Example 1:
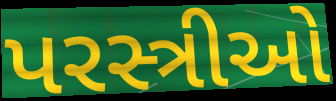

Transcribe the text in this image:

પરસ્ત્રીઓ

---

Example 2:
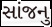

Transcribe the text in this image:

સાંજનુ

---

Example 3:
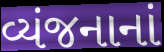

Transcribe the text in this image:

વ્યંજનાનાં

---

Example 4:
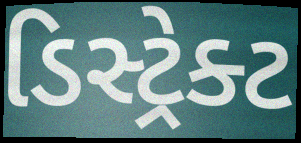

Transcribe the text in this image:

ડિસ્ટ્રેક્ટ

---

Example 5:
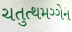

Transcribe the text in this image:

ચતુત્થમગ્ગેન